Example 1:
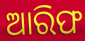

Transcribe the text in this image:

ଆରିଫ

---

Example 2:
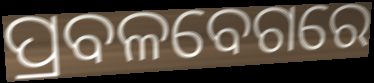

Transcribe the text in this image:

ପ୍ରବଳବେଗରେ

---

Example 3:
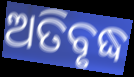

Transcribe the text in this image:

ଅତିବୃଦ୍ଧ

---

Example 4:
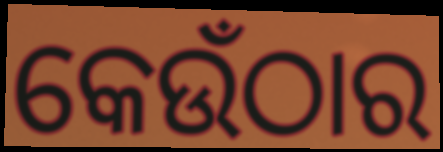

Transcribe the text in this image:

କେଉଁଠାର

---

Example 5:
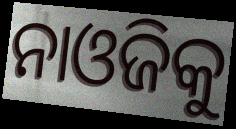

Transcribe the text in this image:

ନାଓଜିକୁ